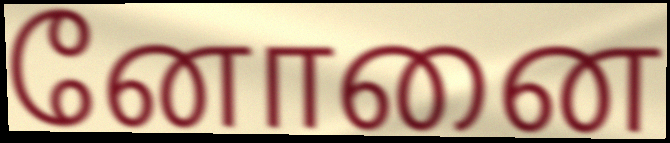
னோனை